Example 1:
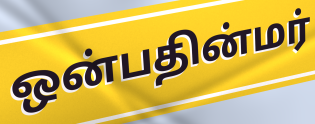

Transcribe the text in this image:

ஒன்பதின்மர்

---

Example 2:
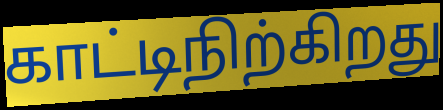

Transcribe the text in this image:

காட்டிநிற்கிறது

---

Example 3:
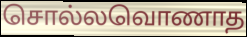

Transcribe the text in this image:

சொல்லவொணாத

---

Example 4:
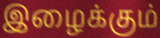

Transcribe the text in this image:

இழைக்கும்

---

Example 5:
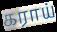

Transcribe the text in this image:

கராய்